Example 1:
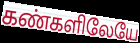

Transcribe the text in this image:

கண்களிலேயே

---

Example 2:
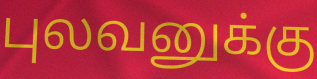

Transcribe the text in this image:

புலவனுக்கு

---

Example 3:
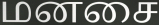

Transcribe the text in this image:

மனசை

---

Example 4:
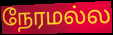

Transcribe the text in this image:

நேரமல்ல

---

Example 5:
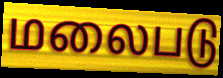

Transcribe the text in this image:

மலைபடு